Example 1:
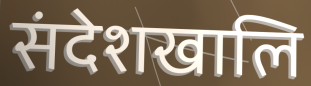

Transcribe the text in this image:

संदेशखालि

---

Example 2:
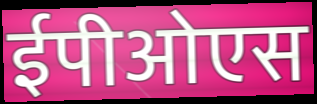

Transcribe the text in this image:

ईपीओएस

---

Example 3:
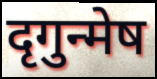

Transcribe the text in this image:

दृगुन्मेष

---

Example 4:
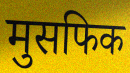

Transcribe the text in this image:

मुसफिक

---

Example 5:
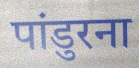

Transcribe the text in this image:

पांडुरना